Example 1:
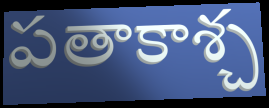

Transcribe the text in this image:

పతాకాశ్చ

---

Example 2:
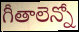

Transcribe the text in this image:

గీతాలెన్నో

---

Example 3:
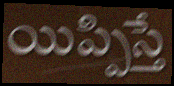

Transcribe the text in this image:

యిప్పిస్తే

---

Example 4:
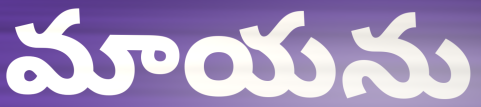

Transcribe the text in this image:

మాయను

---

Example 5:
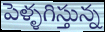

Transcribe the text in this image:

పెళ్ళగిస్తున్న